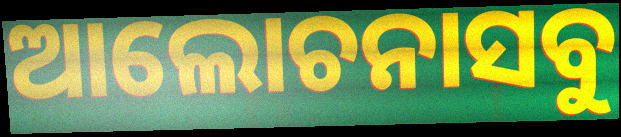
ଆଲୋଚନାସବୁ